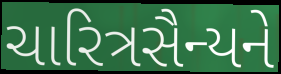
ચારિત્રસૈન્યને